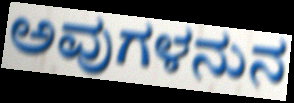
ಅವುಗಳನುನ